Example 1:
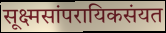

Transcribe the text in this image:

सूक्ष्मसांपरायिकसंयत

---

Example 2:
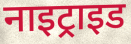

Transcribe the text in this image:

नाइट्राइड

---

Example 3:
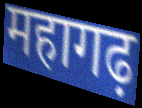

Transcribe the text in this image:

महागढ़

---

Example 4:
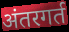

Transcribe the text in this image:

अंतरगर्त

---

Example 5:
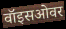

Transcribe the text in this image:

वॉइसओवर